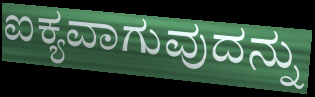
ಐಕ್ಯವಾಗುವುದನ್ನು